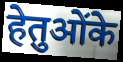
हेतुओंके